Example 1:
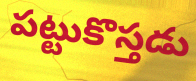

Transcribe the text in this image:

పట్టుకొస్తడు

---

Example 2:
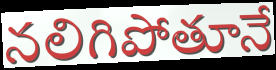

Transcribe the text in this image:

నలిగిపోతూనే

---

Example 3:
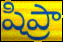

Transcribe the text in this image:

షిప్రా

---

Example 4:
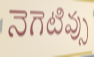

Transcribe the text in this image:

నెగెటివ్సు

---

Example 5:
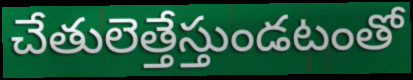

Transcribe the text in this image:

చేతులెత్తేస్తుండటంతో